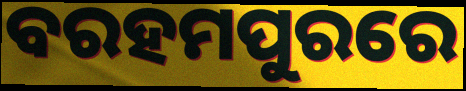
ବରହମପୁରରେ